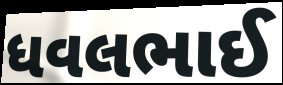
ધવલભાઈ